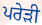
ਪਰੇੜੀ